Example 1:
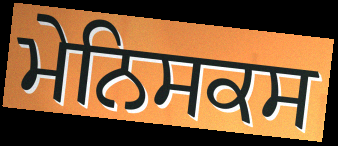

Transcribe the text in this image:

ਮੇਨਿਸਕਸ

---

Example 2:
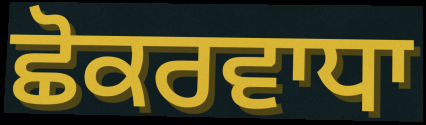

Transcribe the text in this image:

ਛੋਕਰਵਾਧਾ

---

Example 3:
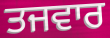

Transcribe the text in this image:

ਤਜਵਾਰ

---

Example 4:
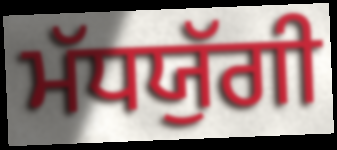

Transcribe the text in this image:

ਮੱਧਯੁੱਗੀ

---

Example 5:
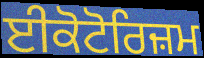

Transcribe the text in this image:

ਈਕੋਟੋਰਿਜ਼ਮ